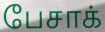
பேசாக்